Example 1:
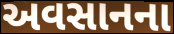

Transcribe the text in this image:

અવસાનના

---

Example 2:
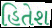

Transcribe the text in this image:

હિતેશ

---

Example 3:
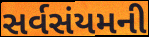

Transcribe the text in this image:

સર્વસંયમની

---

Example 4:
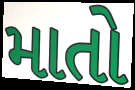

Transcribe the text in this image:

માતો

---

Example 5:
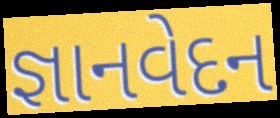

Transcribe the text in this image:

જ્ઞાનવેદન